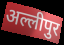
अल्लीपुर